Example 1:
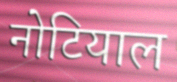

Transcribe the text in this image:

नोटियाल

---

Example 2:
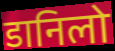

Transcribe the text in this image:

डानिलो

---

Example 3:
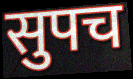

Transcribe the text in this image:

सुपच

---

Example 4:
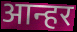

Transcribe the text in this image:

आन्हर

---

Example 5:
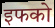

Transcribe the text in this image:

इफको